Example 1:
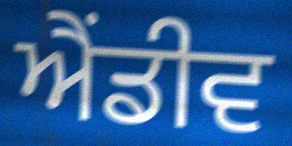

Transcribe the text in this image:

ਐਂਡੀਵ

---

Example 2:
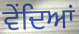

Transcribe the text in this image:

ਵੇਂਦਿਆਂ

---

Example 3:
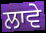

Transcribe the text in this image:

ਲਾਵੇ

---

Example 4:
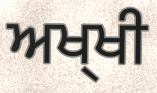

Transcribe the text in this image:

ਅਖ੍ਖੀ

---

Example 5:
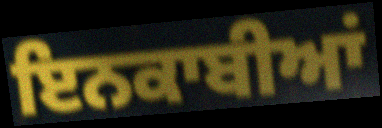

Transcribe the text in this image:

ਇਨਕਾਬੀਆਂ